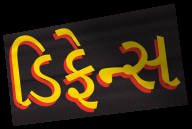
ડિફેન્સ